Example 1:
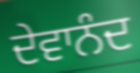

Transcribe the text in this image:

ਦੇਵਾਨੰਦ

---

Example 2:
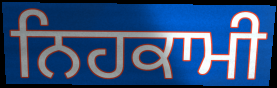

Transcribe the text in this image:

ਨਿਹਕਾਮੀ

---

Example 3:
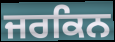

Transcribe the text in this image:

ਜਰਕਿਨ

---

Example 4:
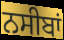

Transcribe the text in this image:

ਨਸੀਬਾਂ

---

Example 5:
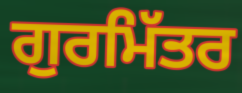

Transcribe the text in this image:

ਗੁਰਮਿੱਤਰ